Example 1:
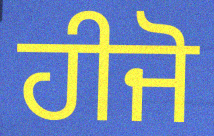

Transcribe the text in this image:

ਹੀਜੋ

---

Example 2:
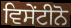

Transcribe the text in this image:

ਵਿਸੇਂਟੀਨੋ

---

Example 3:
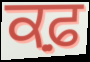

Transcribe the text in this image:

ਕ਼ਫ਼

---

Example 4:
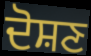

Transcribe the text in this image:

ਦੋਸ਼ਣ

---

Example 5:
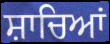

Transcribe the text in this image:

ਸ਼ਾਚਿਆਂ